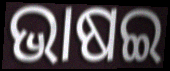
ଭାଷଇ